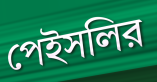
পেইসলির